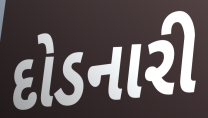
દોડનારી